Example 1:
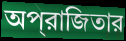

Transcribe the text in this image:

অপ্‌রাজিতার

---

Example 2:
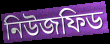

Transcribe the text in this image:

নিউজফিড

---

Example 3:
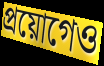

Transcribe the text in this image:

প্রয়োগেও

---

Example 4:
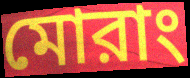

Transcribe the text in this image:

মোরাং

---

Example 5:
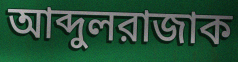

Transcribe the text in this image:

আব্দুলরাজাক